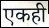
एकही